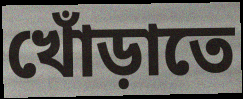
খোঁড়াতে